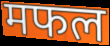
मफल